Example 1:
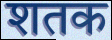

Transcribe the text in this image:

शतक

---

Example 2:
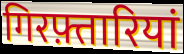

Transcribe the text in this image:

गिरफ़्तारियां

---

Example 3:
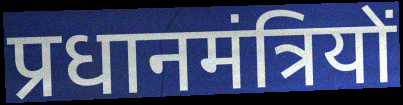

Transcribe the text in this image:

प्रधानमंत्रियों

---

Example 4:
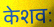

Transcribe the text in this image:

केशवः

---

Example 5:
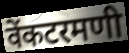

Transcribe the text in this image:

वेंकटरमणी